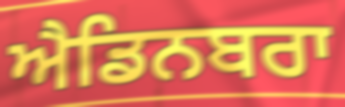
ਐਡਿਨਬਰਾ